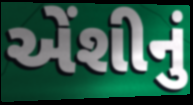
એંશીનું